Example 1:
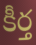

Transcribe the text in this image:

కీర్త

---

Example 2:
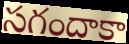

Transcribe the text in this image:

సగందాకా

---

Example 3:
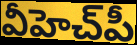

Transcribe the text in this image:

వీహెచ్‌పీ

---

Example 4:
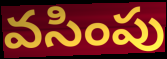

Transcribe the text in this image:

వసింపు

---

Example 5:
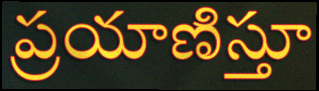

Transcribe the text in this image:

ప్రయాణిస్తూ